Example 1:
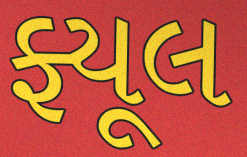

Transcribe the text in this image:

ફ્યૂલ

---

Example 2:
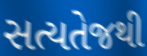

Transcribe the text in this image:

સત્યતેજથી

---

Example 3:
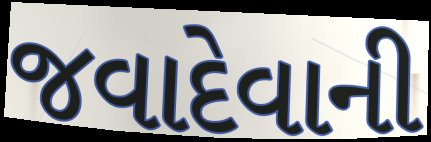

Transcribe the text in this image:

જવાદેવાની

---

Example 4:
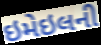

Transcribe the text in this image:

ઇમેઇલની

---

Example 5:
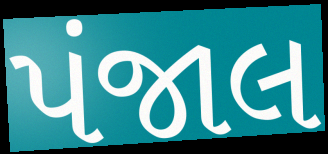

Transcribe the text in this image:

પંજાલ